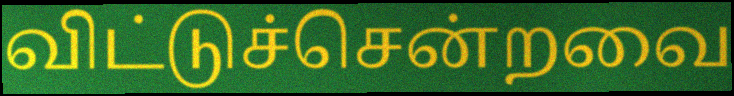
விட்டுச்சென்றவை